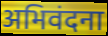
अभिवंदना